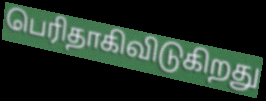
பெரிதாகிவிடுகிறது